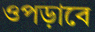
ওপড়াবে